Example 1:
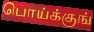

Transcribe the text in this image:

பொய்க்குங்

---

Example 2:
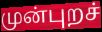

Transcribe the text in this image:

முன்புறச்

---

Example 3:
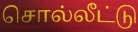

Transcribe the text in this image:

சொல்லீட்டு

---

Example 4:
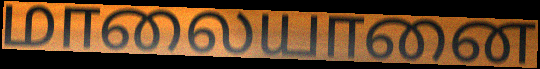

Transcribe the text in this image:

மாலையானை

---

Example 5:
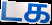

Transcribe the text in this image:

டக